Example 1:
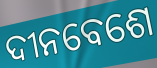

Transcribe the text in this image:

ଦୀନବେଶେ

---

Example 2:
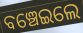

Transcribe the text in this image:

ବଞ୍ଚେଇଲେ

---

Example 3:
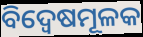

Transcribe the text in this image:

ବିଦ୍ୱେଷମୂଳକ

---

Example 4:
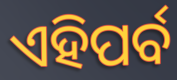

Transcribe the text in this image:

ଏହିପର୍ବ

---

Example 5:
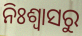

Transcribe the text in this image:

ନିଃଶ୍ବାସରୁ